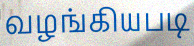
வழங்கியபடி